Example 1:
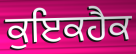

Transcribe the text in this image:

ਕੁਇਕਹੈਕ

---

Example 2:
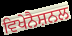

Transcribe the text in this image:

ਵਿਖੇਨੈਸ਼ਨਲ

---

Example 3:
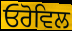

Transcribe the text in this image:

ਓਰੋਵਿਲ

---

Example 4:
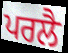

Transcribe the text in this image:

ਪਰਲੈ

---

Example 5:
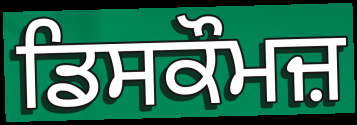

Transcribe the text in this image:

ਡਿਸਕੌਮਜ਼